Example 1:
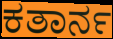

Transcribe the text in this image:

ಕತಾರ್ನ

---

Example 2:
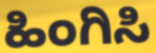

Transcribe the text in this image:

ಹಿಂಗಿಸಿ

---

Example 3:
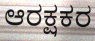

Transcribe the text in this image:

ಆರಕ್ಷಕರ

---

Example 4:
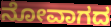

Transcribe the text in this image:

ನೋವಾಗದ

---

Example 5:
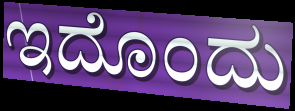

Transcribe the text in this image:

ಇದೊಂದು